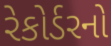
રેકોર્ડરનો